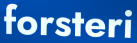
forsteri